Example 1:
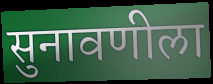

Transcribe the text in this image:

सुनावणीला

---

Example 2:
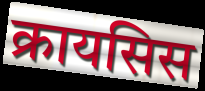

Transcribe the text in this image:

क्रायसिस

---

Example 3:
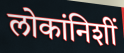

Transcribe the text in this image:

लोकांनिशीं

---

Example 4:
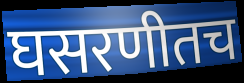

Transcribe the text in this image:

घसरणीतच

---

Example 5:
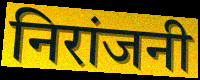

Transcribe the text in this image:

निरांजनी